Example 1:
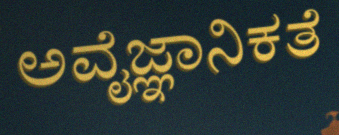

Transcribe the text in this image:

ಅವೈಜ್ಞಾನಿಕತೆ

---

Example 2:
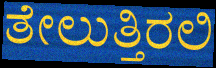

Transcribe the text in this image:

ತೇಲುತ್ತಿರಲಿ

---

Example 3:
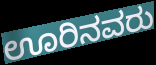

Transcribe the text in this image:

ಊರಿನವರು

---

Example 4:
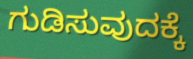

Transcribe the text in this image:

ಗುಡಿಸುವುದಕ್ಕೆ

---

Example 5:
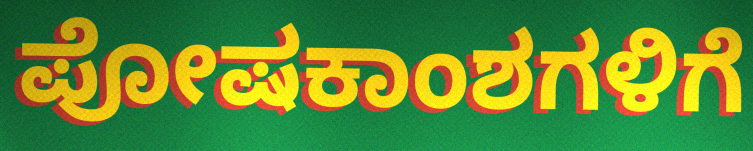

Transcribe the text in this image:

ಪೋಷಕಾಂಶಗಳಿಗೆ